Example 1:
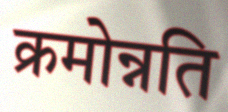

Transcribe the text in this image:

क्रमोन्नति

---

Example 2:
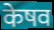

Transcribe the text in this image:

केषव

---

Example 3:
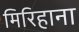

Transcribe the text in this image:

मिरिहाना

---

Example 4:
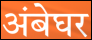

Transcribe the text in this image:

अंबेघर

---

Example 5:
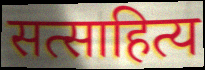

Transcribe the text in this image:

सत्साहित्य